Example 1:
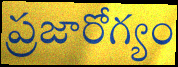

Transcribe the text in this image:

ప్రజారోగ్యం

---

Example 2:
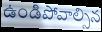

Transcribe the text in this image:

ఉండిపోవాల్సిన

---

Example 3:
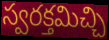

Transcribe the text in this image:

స్వరక్తమిచ్చి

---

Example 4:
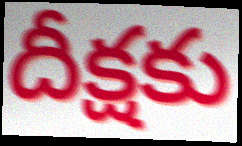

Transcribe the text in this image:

దీక్షకు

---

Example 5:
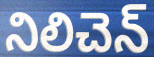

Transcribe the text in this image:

నిలిచెన్